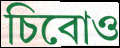
চিবোও